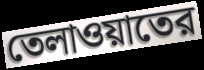
তেলাওয়াতের